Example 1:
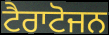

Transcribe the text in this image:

ਟੈਰਾਟੋਜਨ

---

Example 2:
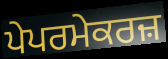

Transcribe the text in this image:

ਪੇਪਰਮੇਕਰਜ਼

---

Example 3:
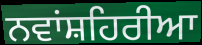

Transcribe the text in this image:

ਨਵਾਂਸ਼ਹਿਰੀਆ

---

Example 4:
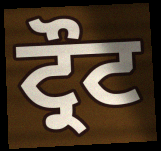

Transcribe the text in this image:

ਟ੍ਰੌਟ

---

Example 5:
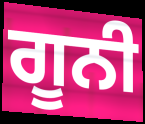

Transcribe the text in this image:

ਗੂਨੀ